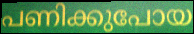
പണിക്കുപോയ